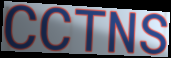
CCTNS